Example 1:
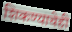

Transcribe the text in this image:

शिकण्याचेही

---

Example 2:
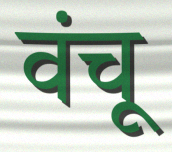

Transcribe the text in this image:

वंचू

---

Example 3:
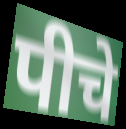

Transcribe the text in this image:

पीचे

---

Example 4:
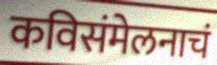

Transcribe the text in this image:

कविसंमेलनाचं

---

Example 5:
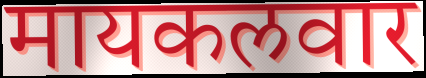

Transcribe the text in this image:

मायकलवार